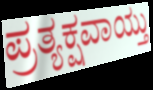
ಪ್ರತ್ಯಕ್ಷವಾಯ್ತು